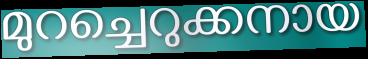
മുറച്ചെറുക്കനായ